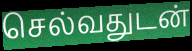
செல்வதுடன்